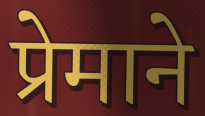
प्रेमाने